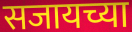
सजायच्या